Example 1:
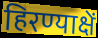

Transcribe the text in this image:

हिरण्याक्षें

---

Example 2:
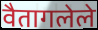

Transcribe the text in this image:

वैतागलेले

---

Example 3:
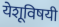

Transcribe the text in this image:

येशूविषयी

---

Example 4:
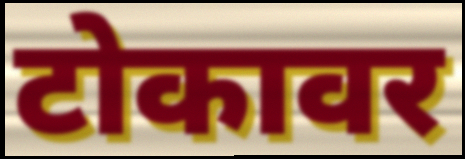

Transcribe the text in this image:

टोकावर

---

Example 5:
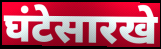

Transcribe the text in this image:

घंटेसारखे